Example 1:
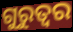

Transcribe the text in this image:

ଗୁରୁତ୍ବର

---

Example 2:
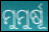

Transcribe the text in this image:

ମୁମୁର୍ଷୂ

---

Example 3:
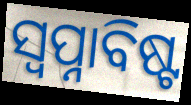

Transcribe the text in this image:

ସ୍ୱପ୍ନାବିଷ୍ଟ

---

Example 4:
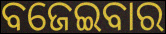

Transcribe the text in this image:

ବଜେଇବାର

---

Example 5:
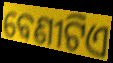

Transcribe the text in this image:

ବେଣୀଟିଏ